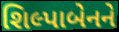
શિલ્પાબેનને